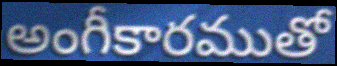
అంగీకారముతో